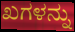
ಖಗಳನ್ನು